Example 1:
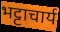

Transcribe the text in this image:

भट्टाचार्य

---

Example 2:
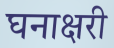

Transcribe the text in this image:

घनाक्षरी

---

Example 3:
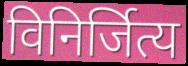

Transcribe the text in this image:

विनिर्जित्य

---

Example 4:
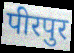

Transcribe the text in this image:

पीरपुर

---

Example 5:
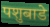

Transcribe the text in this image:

पशुबाडे